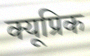
क्यूप्रिक